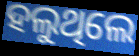
ହଲୁଥିଲେ